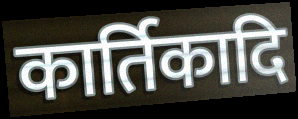
कार्तिकादि